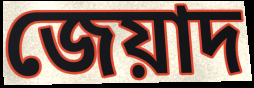
জেয়াদ